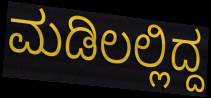
ಮಡಿಲಲ್ಲಿದ್ದ